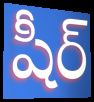
షీర్